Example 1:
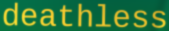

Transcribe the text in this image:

deathless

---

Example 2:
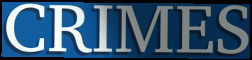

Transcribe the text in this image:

CRIMES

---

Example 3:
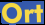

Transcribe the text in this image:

Ort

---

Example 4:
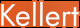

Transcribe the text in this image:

Kellert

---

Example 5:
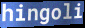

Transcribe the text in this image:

hingoli